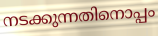
നടക്കുന്നതിനൊപ്പം